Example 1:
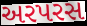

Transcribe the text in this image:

અરપરસ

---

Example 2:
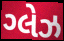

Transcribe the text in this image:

ગ્લેઝ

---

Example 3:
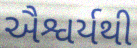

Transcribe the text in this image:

ઐશ્વર્યથી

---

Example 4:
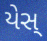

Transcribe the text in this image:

યેસ્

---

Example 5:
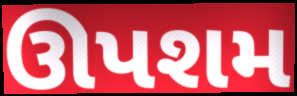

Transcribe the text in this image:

ઊપશમ